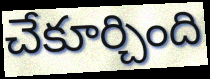
చేకూర్చింది